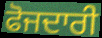
ਫੋਜਦਾਰੀ